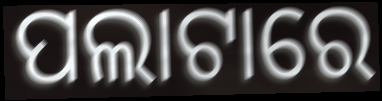
ପଲାଟାରେ